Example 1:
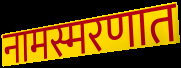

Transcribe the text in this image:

नामस्मरणात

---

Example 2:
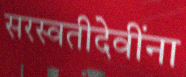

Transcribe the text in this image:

सरस्वतीदेवींना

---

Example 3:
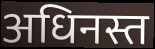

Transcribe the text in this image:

अधिनस्त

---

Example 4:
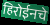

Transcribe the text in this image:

हिरोईनचे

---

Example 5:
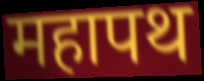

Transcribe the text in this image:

महापथ